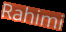
Rahimi